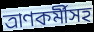
ত্রাণকর্মীসহ